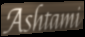
Ashtami